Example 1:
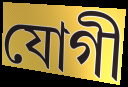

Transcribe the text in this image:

যোগী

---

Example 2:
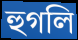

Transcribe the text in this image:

হুগলি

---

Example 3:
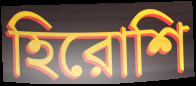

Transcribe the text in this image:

হিরোশি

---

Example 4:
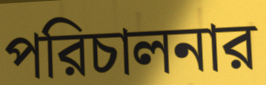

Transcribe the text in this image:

পরিচালনার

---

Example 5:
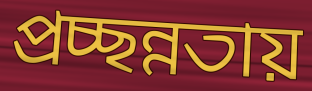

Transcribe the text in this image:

প্রচ্ছন্নতায়